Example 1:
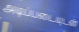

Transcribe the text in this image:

அடிப்படையுடன்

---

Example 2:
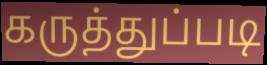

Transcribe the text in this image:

கருத்துப்படி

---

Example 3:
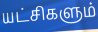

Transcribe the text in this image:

யட்சிகளும்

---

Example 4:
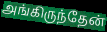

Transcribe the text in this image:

அங்கிருந்தேன்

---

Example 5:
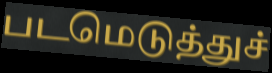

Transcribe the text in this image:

படமெடுத்துச்